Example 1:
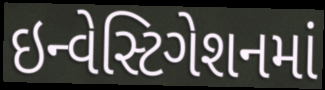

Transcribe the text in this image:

ઇન્વેસ્ટિગેશનમાં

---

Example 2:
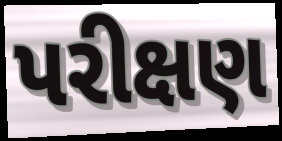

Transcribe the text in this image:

પરીક્ષણ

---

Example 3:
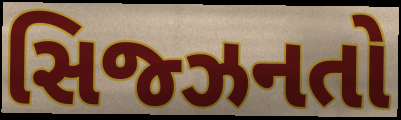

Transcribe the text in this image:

સિજ્ઝનતો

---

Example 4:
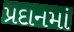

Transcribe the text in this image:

પ્રદાનમાં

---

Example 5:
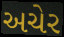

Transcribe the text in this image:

અચેર